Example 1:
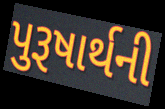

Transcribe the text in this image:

પુરૂષાર્થની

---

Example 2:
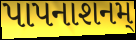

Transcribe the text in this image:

પાપનાશનમ્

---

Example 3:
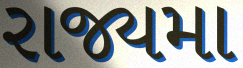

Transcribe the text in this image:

રાજ્યમા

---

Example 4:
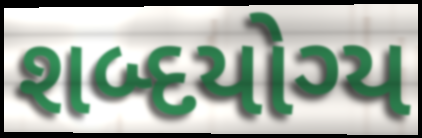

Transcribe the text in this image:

શબ્દયોગ્ય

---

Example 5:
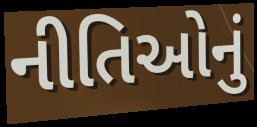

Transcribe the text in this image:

નીતિઓનું